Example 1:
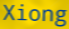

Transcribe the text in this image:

Xiong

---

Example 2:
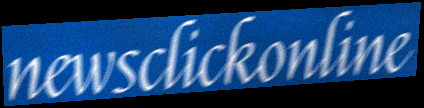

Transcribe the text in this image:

newsclickonline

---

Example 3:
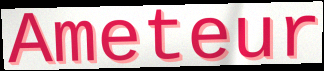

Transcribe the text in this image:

Ameteur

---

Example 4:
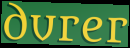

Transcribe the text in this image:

durer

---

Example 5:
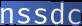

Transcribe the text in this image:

nssdc